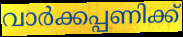
വാർക്കപ്പണിക്ക്